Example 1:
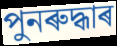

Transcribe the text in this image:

পুনৰুদ্ধাৰ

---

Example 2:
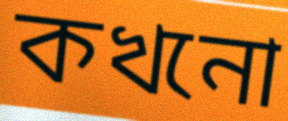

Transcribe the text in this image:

কখনো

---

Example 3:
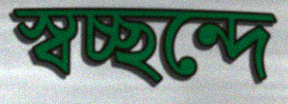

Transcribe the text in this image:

স্বচ্ছন্দে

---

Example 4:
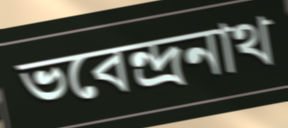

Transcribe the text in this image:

ভবেন্দ্ৰনাথ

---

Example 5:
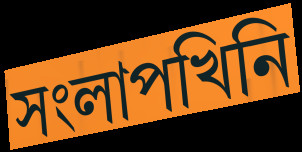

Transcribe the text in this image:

সংলাপখিনি